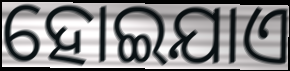
ହୋଇଯାଏ